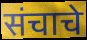
संचाचे